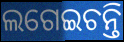
ଲଗେଇଚନ୍ତି